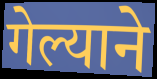
गेल्याने